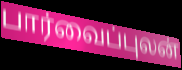
பார்வைப்புலன்